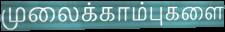
முலைக்காம்புகளை